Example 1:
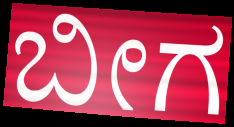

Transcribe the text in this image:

ಬೀಗ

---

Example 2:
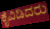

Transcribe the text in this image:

ಕೈವಿಡಿದರು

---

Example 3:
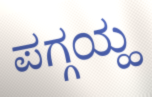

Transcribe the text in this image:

ಪಗ್ಗಯ್ಹ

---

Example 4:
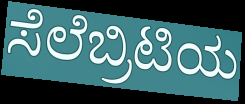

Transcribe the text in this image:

ಸೆಲೆಬ್ರಿಟಿಯ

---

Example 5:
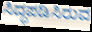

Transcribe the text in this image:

ಸಿದ್ಧಪಡಿಸಿರುವ